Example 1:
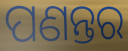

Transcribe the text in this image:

ପଣନ୍ତର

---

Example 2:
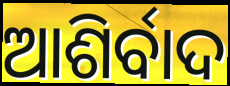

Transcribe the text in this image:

ଆଶିର୍ବାଦ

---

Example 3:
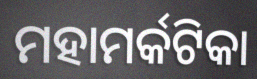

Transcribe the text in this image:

ମହାମର୍କଟିକା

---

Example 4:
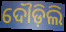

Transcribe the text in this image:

ଦୌଡ଼ିଲି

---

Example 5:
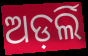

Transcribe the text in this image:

ଅଡ଼ର୍ଲି